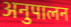
अनुपालन